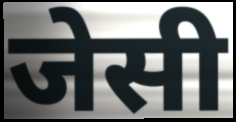
जेसी